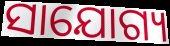
ସାଯୋଗ୍ୟ